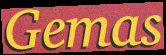
Gemas